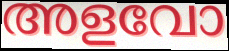
അളവോ